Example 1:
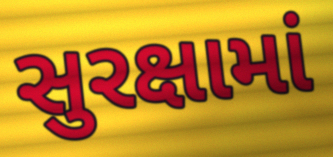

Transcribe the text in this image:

સુરક્ષામાં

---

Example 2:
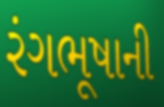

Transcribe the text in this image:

રંગભૂષાની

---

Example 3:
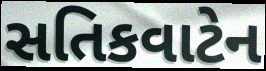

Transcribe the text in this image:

સતિકવાટેન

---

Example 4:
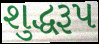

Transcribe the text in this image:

શુદ્ધરૂપ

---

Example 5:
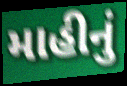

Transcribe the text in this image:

માહીનું